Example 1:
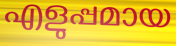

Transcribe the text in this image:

എളുപ്പമായ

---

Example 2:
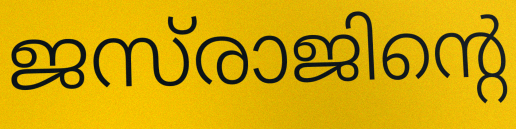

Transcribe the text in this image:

ജസ്‌രാജിന്റെ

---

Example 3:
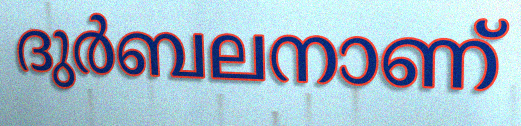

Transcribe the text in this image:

ദുർബലനാണ്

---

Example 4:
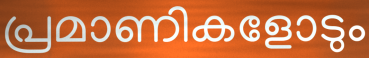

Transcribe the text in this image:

പ്രമാണികളോടും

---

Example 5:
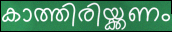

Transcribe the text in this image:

കാത്തിരിയ്ക്കണം